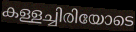
കള്ളച്ചിരിയോടെ